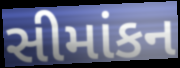
સીમાંકન